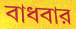
বাধবার